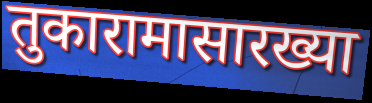
तुकारामासारख्या